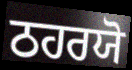
ਠਹਰਯੋ